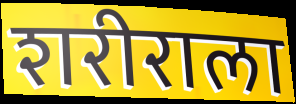
शरीराला